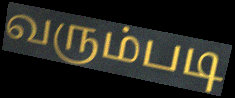
வரும்படி